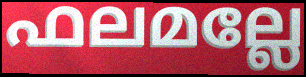
ഫലമല്ലേ